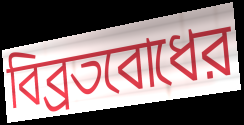
বিব্রতবোধের